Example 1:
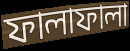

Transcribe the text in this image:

ফালাফালা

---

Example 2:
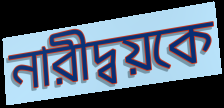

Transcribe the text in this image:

নারীদ্বয়কে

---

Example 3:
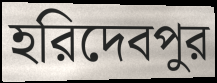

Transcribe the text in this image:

হরিদেবপুর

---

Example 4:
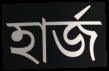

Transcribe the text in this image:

হার্জ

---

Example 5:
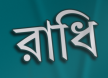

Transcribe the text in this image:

রাধি